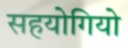
सहयोगियो